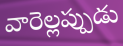
వారెల్లప్పుడు